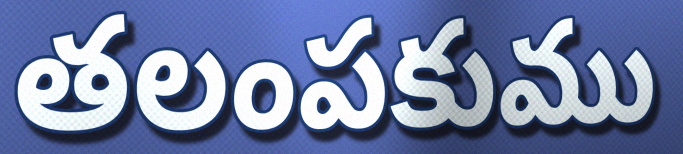
తలంపకుము